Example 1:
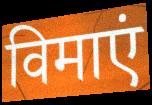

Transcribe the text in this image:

विमाएं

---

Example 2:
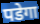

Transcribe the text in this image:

पडेगा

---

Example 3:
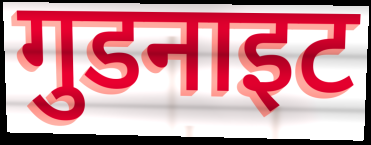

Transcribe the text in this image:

गुडनाइट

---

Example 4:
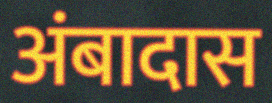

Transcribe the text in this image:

अंबादास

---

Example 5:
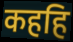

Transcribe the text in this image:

कहहि